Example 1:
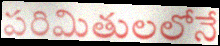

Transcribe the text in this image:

పరిమితులలోనే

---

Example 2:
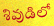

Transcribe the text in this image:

శివుడిలో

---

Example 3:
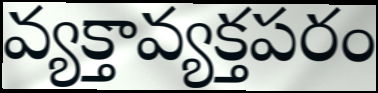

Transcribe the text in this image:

వ్యక్తావ్యక్తపరం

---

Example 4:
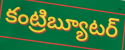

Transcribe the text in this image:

కంట్రిబ్యూటర్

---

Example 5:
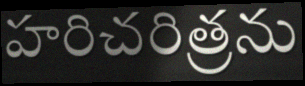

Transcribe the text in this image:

హరిచరిత్రను